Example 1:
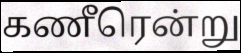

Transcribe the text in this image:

கணீரென்று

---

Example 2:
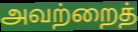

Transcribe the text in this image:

அவற்றைத்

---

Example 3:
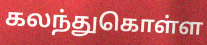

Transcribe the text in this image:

கலந்துகொள்ள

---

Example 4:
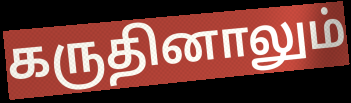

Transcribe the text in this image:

கருதினாலும்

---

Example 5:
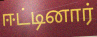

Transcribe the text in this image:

ஈட்டினார்